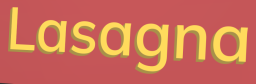
Lasagna